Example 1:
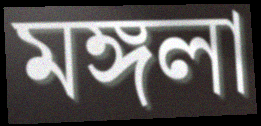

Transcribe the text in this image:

মঙ্গলা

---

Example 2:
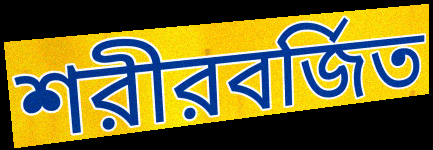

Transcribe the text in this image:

শরীরবর্জিত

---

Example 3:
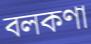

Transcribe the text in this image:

বলকণা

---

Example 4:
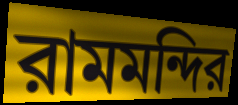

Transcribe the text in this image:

রামমন্দির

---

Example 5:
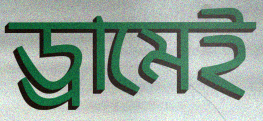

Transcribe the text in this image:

ড্রামেই